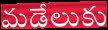
మడేలుకు